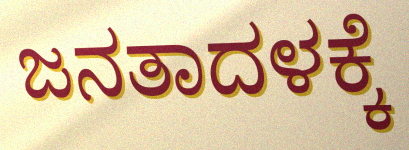
ಜನತಾದಳಕ್ಕೆ